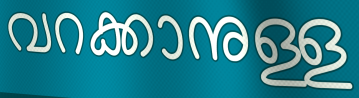
വറക്കാനുള്ള